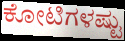
ಕೋಟಿಗಳಷ್ಟು